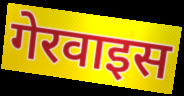
गेरवाइस